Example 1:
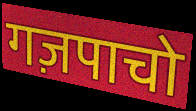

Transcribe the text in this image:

गज़पाचो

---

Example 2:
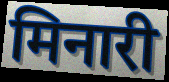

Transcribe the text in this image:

मिनारी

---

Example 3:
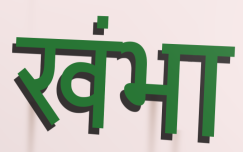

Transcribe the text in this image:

खंभा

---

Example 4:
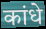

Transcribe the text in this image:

कांधे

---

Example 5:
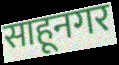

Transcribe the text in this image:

साहूनगर